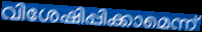
വിശേഷിപ്പിക്കാമെന്ന്